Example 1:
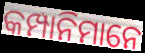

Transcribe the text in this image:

କମ୍ପାନିମାନେ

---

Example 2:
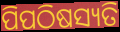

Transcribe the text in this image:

ପିପଠିଷସ୍ଯତି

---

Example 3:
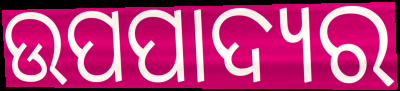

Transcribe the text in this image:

ଉପପାଦ୍ୟର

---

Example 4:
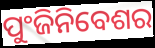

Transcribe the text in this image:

ପୁଂଜିନିବେଶର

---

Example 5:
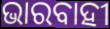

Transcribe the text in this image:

ଭାରବାହୀ